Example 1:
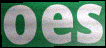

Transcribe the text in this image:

oes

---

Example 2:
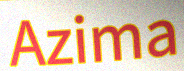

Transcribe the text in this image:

Azima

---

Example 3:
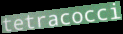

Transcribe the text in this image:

tetracocci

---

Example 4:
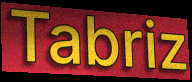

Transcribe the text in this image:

Tabriz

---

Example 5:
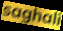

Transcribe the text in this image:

saghali